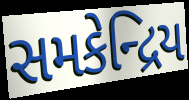
સમકેન્દ્રિય